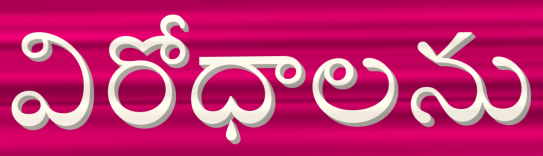
విరోధాలను